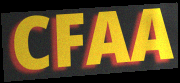
CFAA